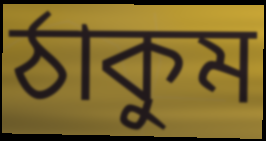
ঠাকুম